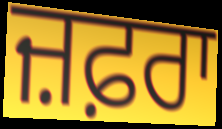
ਜ਼ਫ਼ਰਾ